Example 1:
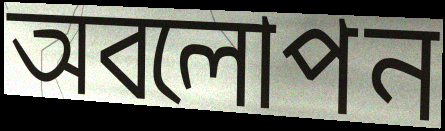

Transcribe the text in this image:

অবলোপন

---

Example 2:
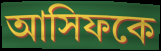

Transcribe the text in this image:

আসিফকে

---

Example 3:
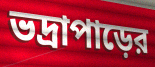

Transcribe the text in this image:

ভদ্রাপাড়ের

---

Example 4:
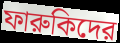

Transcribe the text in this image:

ফারুকিদের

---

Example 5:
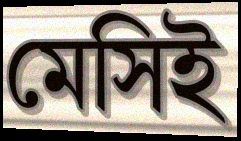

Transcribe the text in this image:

মেসিই